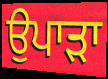
ਉਪਾੜਾ